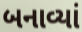
બનાવ્યાં